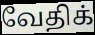
வேதிக்